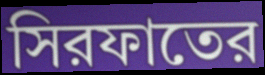
সিরফাতের